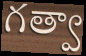
గత్వా